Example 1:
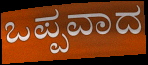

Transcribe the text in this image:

ಒಪ್ಪವಾದ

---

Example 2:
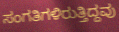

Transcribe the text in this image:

ಸಂಗತಿಗಳಿರುತ್ತಿದ್ದವು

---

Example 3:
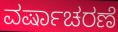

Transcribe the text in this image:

ವರ್ಷಾಚರಣೆ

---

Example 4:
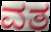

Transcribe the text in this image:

ವತ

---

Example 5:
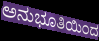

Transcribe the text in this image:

ಅನುಭೂತಿಯಿಂದ